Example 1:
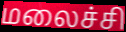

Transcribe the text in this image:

மலைச்சி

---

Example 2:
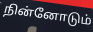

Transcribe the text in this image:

நின்னோடும்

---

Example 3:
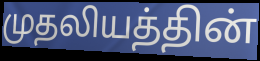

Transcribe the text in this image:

முதலியத்தின்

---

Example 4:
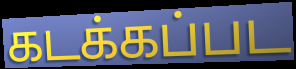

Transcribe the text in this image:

கடக்கப்பட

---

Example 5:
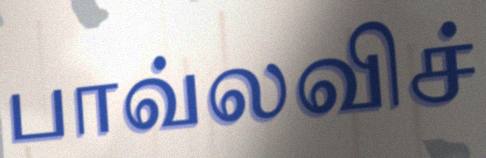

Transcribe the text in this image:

பாவ்லவிச்